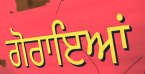
ਗੋਰਾਇਆਂ